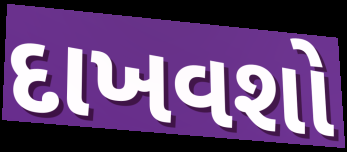
દાખવશો